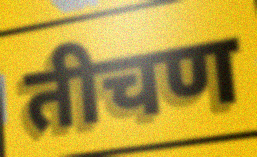
तीचण